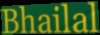
Bhailal